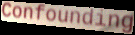
Confounding